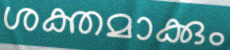
ശക്തമാക്കും